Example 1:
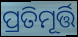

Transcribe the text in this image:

ପ୍ରତିମୂର୍ତ୍ତି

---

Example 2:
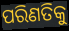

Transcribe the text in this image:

ପରିଣତିକୁ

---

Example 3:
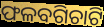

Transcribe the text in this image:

ଫଳବଗିଚାଟି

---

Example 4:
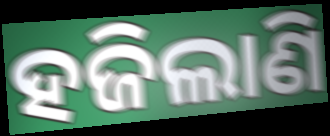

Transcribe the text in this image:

ହଜିଲାଣି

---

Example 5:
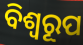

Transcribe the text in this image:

ବିଶ୍ଵରୂପ